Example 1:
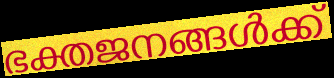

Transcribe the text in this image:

ഭക്തജനങ്ങൾക്ക്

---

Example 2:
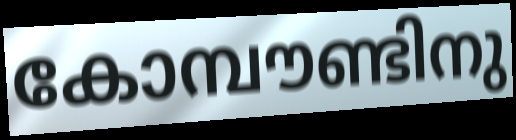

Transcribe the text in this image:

കോമ്പൗണ്ടിനു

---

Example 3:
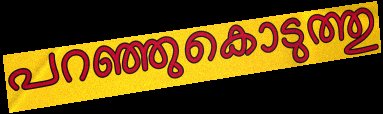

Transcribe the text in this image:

പറഞ്ഞുകൊടുത്തു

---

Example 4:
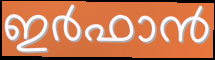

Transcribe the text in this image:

ഇർഫാൻ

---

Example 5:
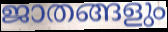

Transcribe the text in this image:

ജാതങ്ങളും